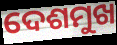
ଦେଶମୁଖ